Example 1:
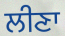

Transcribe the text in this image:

ਲੀਣਾ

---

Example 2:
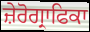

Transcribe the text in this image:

ਜ਼ੇਰੋਗ੍ਰਾਫਿਕਾ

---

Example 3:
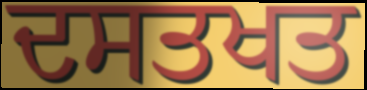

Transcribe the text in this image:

ਦਸਤਖਤ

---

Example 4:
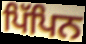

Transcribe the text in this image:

ਪਿੱਪਿਨ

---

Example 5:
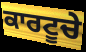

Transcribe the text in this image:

ਕਾਰਟੂਚੇ